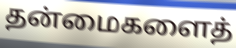
தன்மைகளைத்